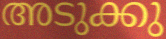
അടുക്കു